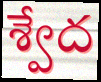
శ్వేద